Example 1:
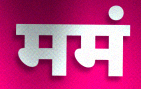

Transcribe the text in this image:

ममं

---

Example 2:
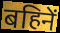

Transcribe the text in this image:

बहिनें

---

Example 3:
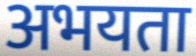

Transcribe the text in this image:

अभयता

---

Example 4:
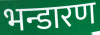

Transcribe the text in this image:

भन्डारण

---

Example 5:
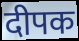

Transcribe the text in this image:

दीपक